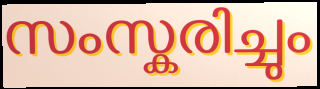
സംസ്കരിച്ചും